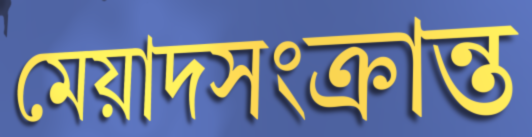
মেয়াদসংক্রান্ত